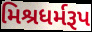
મિશ્રધર્મરૂપ